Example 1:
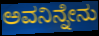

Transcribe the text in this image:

ಅವನಿನ್ನೇನು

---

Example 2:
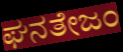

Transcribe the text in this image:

ಘನತೇಜಂ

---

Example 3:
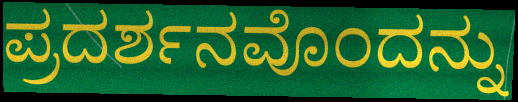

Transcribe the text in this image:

ಪ್ರದರ್ಶನವೊಂದನ್ನು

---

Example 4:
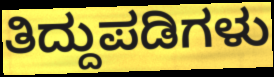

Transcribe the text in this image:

ತಿದ್ದುಪಡಿಗಳು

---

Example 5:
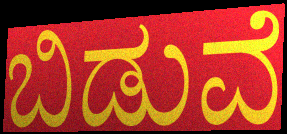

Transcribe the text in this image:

ಬಿಡುವೆ